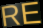
RE